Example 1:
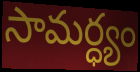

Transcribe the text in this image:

సామర్ధ్యం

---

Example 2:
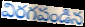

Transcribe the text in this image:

విరగపండిన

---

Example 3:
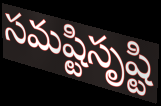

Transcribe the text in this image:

సమష్టిసృష్టి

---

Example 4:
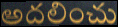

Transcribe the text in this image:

అదలించు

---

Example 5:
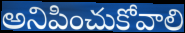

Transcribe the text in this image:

అనిపించుకోవాలి